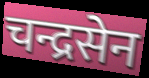
चन्द्रसेन